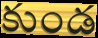
కుండ